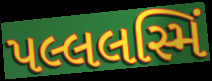
પલ્લલસ્મિં